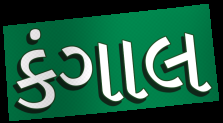
કંગાલ